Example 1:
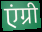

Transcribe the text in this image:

एंग्री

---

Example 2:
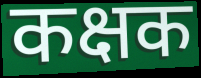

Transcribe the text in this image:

कक्षक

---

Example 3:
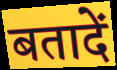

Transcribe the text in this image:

बतादें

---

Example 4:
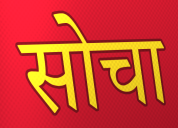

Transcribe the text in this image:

सोचा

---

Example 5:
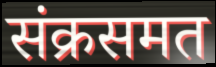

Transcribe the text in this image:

संक्रसमत